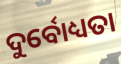
ଦୁର୍ବୋଧ୍ୟତା